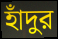
হাঁদুর